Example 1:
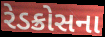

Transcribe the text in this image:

રેડક્રોસના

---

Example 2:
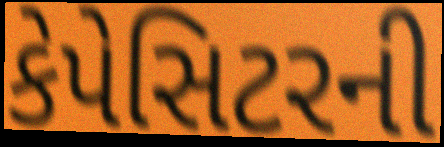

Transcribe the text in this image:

કેપેસિટરની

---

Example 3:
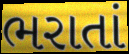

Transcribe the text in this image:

ભરાતાં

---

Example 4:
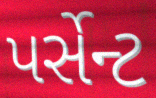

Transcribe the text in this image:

પર્સેન્ટ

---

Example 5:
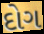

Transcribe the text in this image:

દોગ